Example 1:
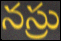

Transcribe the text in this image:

నస్రు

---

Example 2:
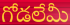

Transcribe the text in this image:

గోడలేమీ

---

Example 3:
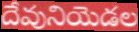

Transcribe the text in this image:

దేవునియెడల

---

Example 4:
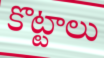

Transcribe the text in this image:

కొట్టాలు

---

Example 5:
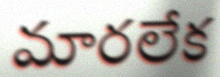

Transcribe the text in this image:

మారలేక